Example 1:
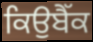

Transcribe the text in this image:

ਕਿਉਬੈੱਕ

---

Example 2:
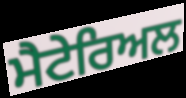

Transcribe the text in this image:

ਮੈਟੇਰਿਅਲ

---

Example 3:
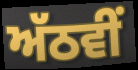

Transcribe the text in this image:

ਅੱਠਵੀੰ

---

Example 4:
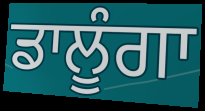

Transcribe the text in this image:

ਡਾਲੂੰਗਾ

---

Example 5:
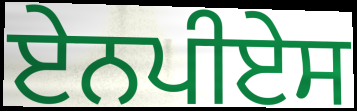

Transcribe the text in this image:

ਏਨਪੀਏਸ